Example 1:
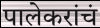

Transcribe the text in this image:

पालेकरांचं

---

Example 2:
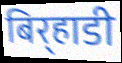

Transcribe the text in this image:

बिर्‍हाडी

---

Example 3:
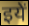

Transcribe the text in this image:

इयें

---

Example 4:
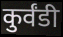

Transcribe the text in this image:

कुर्वंडी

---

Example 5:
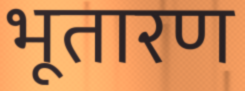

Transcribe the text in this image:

भूतारण